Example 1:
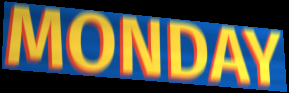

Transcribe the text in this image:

MONDAY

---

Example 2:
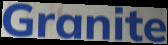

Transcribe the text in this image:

Granite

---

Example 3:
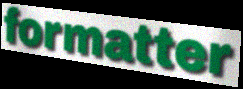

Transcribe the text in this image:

formatter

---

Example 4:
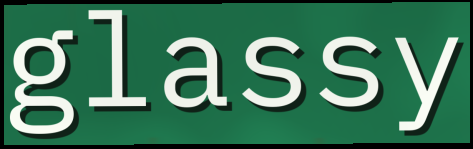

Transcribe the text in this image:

glassy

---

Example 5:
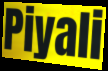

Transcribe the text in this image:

Piyali